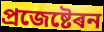
প্ৰজেষ্টেৰন